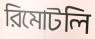
রিমোটলি